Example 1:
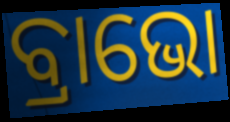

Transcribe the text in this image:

ବ୍ରାଭୋ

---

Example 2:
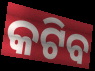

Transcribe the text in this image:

କଟିବ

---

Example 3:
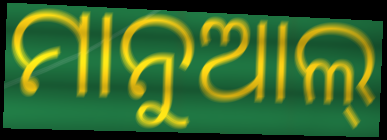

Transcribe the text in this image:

ମାନୁଆଲ୍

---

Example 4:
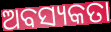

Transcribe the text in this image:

ଅବସ୍ୟକତା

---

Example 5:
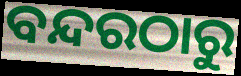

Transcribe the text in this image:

ବନ୍ଦରଠାରୁ